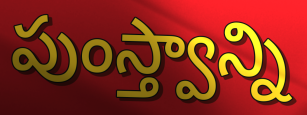
పుంస్త్వాన్ని